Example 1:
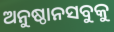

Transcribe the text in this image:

ଅନୁଷ୍ଠାନସବୁକୁ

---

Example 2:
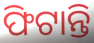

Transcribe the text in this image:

ଫିଟାନ୍ତି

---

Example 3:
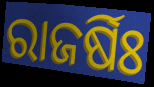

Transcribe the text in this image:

ରାଜର୍ଷିଃ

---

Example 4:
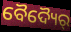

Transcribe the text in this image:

ବୈଦ୍ୟୈର୍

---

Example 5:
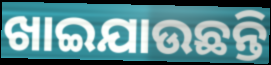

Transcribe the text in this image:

ଖାଇଯାଉଛନ୍ତି